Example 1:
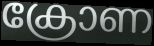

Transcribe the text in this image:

ക്രോണ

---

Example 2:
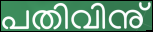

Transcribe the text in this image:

പതിവിനു്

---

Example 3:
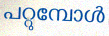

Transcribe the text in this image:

പറ്റുമ്പോൾ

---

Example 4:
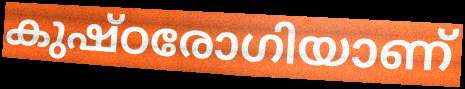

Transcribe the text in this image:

കുഷ്ഠരോഗിയാണ്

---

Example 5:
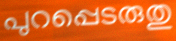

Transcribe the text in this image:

പുറപ്പെടരുതു